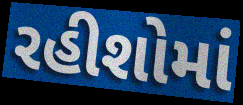
રહીશોમાં